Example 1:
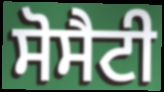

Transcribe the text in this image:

ਸੋਸੈਟੀ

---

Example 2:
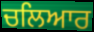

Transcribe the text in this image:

ਚਲਿਆਰ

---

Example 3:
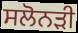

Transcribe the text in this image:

ਸਲੋਨੜੀ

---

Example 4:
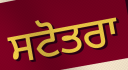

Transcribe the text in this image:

ਸਟੋਤਰਾ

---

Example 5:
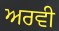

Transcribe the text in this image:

ਅਰਵੀ